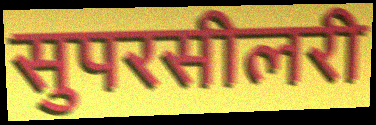
सुपरसीलरी